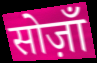
सोज़ाँ